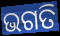
ଭଗତି